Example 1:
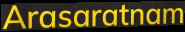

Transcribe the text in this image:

Arasaratnam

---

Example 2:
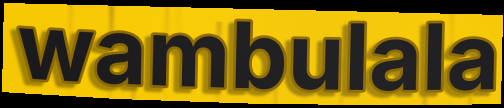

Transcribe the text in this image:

wambulala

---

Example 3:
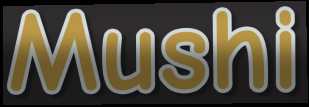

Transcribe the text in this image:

Mushi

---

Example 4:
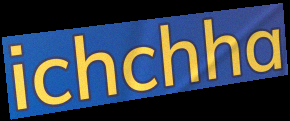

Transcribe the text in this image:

ichchha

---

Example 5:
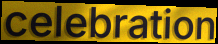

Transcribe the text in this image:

celebration